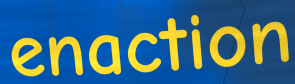
enaction